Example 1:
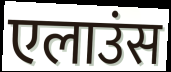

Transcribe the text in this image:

एलाउंस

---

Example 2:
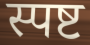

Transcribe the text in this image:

स्पष्ट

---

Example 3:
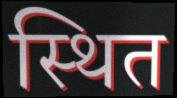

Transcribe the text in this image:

स्थित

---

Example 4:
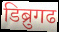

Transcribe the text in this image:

डिब्रुगढ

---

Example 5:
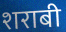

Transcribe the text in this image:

शराबी